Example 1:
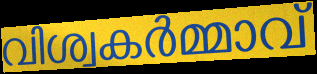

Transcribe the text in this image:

വിശ്വകർമ്മാവ്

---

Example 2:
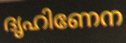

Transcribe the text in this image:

ദൃഹിണേന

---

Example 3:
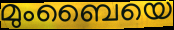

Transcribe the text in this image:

മുംബൈയെ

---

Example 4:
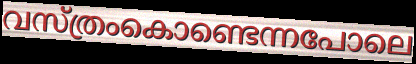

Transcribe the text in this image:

വസ്ത്രംകൊണ്ടെന്നപോലെ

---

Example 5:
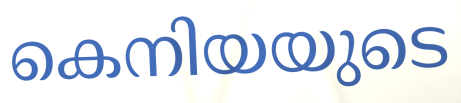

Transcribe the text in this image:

കെനിയയുടെ